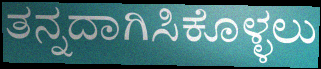
ತನ್ನದಾಗಿಸಿಕೊಳ್ಳಲು